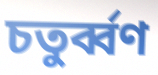
চতুর্ব্বণ